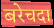
बरेचदा